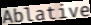
Ablative